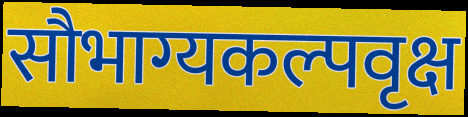
सौभाग्यकल्पवृक्ष